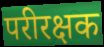
परीरक्षक